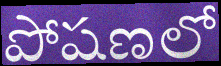
పోషణలో